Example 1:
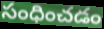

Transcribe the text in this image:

సంధించడం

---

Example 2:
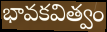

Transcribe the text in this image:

భావకవిత్వం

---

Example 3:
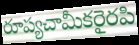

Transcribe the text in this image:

రూప్యచామీకరైరపి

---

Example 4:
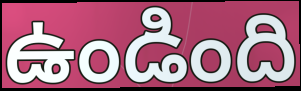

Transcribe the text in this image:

ఉండింది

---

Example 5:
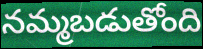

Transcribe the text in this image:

నమ్మబడుతోంది